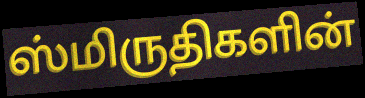
ஸ்மிருதிகளின்